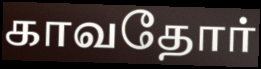
காவதோர்